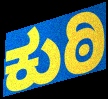
ಕುಠಿ